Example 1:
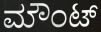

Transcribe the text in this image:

ಮೌಂಟ್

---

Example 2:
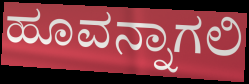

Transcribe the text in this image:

ಹೂವನ್ನಾಗಲಿ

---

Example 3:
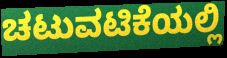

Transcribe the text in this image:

ಚಟುವಟಿಕೆಯಲ್ಲಿ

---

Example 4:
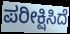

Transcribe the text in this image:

ಪರೀಕ್ಷಿಸಿದೆ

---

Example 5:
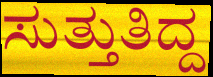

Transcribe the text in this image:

ಸುತ್ತುತಿದ್ದ